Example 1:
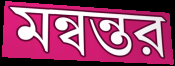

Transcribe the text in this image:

মন্বন্তর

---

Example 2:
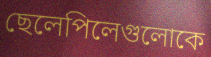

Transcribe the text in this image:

ছেলেপিলেগুলোকে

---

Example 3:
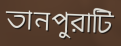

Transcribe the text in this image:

তানপুরাটি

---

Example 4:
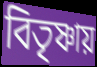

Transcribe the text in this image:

বিতৃষ্ণায়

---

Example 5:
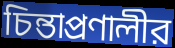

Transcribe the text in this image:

চিন্তাপ্রণালীর